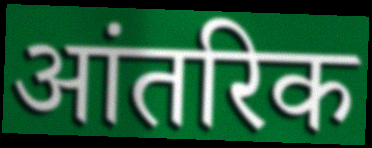
आंतरिक